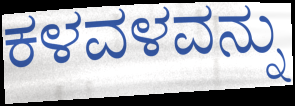
ಕಳವಳವನ್ನು